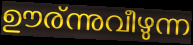
ഊര്ന്നുവീഴുന്ന